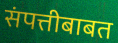
संपत्तीबाबत